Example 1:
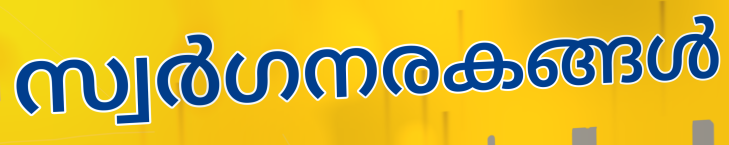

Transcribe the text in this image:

സ്വർഗനരകങ്ങൾ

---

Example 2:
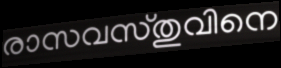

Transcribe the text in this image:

രാസവസ്തുവിനെ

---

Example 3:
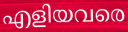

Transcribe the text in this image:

എളിയവരെ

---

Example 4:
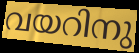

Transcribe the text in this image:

വയറിനു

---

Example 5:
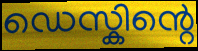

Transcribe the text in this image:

ഡെസ്കിന്റെ